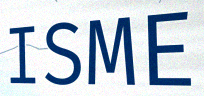
ISME